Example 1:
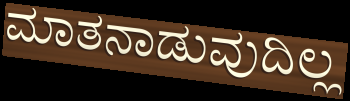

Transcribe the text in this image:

ಮಾತನಾಡುವುದಿಲ್ಲ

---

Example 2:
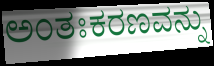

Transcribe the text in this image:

ಅಂತಃಕರಣವನ್ನು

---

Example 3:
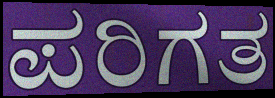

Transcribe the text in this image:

ಪರಿಗತ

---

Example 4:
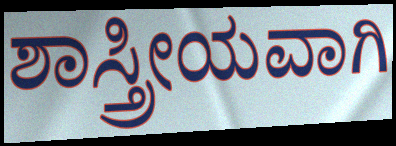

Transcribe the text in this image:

ಶಾಸ್ತ್ರೀಯವಾಗಿ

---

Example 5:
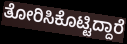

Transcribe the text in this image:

ತೋರಿಸಿಕೊಟ್ಟಿದ್ದಾರೆ